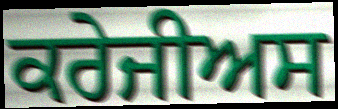
ਕਰੇਜੀਅਸ